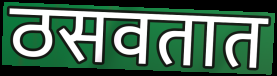
ठसवतात